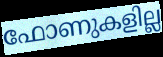
ഫോണുകളില്ല